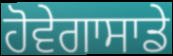
ਹੋਵੇਗਾਸਾਡੇ